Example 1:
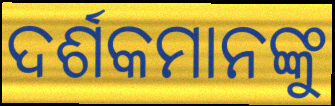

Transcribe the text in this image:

ଦର୍ଶକମାନଙ୍କୁ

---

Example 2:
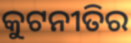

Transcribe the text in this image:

କୁଟନୀତିର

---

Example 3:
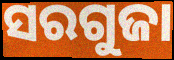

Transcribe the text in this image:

ସରଗୁଜା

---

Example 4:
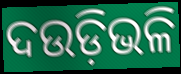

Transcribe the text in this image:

ଦଉଡ଼ିଭଳି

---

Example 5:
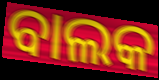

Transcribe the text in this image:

ବାଲକ